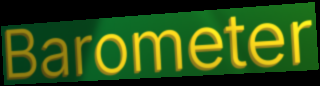
Barometer